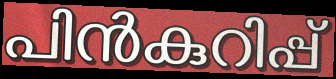
പിൻകുറിപ്പ്